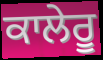
ਕਾਲੇਰੂ